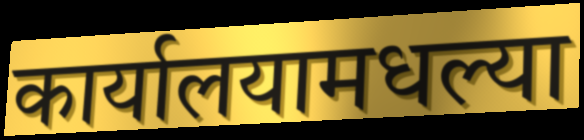
कार्यालयामधल्या